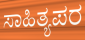
ಸಾಹಿತ್ಯಪರ